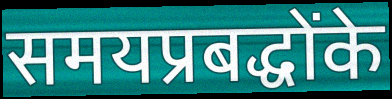
समयप्रबद्धोंके